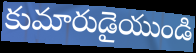
కుమారుడైయుండి